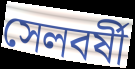
সেলবর্ষী